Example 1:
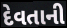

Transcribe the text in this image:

દેવતાની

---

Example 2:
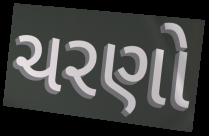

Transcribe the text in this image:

ચરણો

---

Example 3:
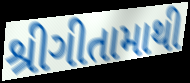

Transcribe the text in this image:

શ્રીગીતામાથી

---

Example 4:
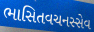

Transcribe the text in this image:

ભાસિતવચનસ્સેવ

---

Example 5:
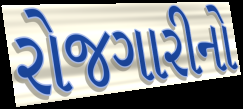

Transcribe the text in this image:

રોજગારીનો